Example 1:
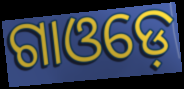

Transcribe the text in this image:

ଗାଓଡ଼େ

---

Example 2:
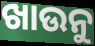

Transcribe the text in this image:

ଖାଉନୁ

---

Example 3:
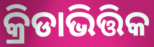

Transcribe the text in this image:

କ୍ରିଡାଭିତ୍ତିକ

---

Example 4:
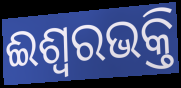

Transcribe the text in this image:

ଈଶ୍ୱରଭକ୍ତି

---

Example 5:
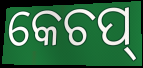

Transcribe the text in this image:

କେଚପ୍